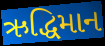
ઋદ્ધિમાન